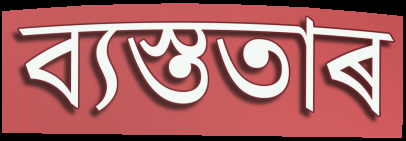
ব্যস্ততাৰ